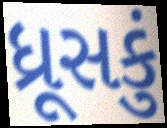
ધ્રૂસકું